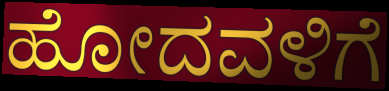
ಹೋದವಳಿಗೆ